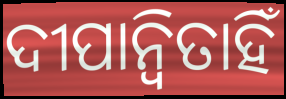
ଦୀପାନ୍ୱିତାହିଁ